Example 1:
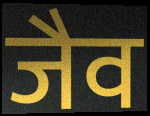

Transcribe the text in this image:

जैव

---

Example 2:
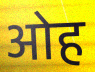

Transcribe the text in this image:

ओह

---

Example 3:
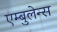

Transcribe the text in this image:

एम्बुलेन्स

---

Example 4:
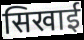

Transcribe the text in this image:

सिखाई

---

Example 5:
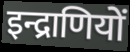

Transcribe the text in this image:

इन्द्राणियों